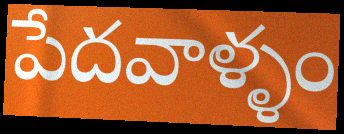
పేదవాళ్ళం